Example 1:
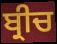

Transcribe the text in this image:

ਬ੍ਰੀਚ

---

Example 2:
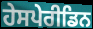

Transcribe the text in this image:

ਹੇਸਪੇਰੀਡਿਨ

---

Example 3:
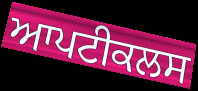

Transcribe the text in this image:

ਆਪਟੀਕਲਸ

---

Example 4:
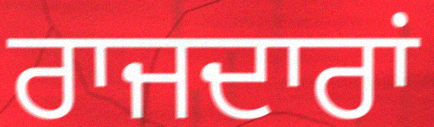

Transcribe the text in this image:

ਰਾਜਦਾਰਾਂ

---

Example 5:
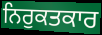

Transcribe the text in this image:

ਨਿਰੁਕਤਕਾਰ